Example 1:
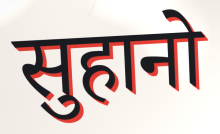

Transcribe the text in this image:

सुहानो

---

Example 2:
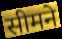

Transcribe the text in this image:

सीमने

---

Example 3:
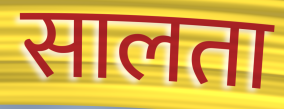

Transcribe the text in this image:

सालता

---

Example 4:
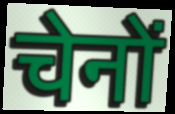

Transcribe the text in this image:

चेनों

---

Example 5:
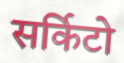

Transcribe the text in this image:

सर्किटो